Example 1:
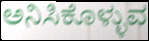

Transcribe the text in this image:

ಅನಿಸಿಕೊಳ್ಳುವ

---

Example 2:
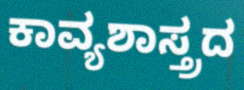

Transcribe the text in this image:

ಕಾವ್ಯಶಾಸ್ತ್ರದ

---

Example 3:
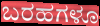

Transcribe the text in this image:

ಬರಹಗಳೂ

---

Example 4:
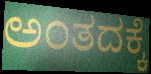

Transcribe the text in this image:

ಅಂತದಕ್ಕೆ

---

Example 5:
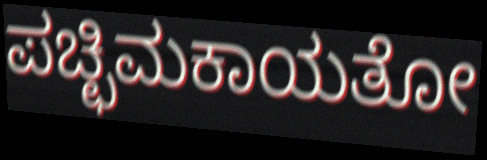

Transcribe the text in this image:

ಪಚ್ಛಿಮಕಾಯತೋ